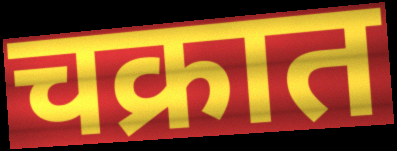
चक्रात